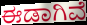
ಈಡಾಗಿವೆ